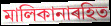
মালিকানাৰহিত